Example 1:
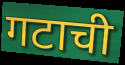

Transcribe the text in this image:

गटाची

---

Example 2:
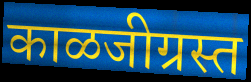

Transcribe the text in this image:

काळजीग्रस्त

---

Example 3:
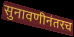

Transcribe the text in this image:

सुनावणीनंतरच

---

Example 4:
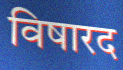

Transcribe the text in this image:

विषारद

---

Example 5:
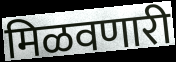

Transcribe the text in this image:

मिळवणारी